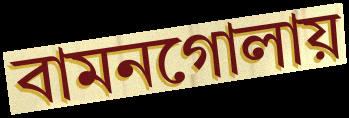
বামনগোলায়